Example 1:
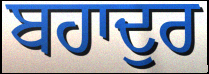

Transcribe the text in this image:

ਬਹਾਦੁਰ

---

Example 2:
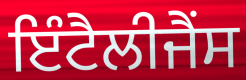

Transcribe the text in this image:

ਇੰਟੈਲੀਜੈਂਸ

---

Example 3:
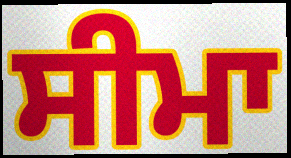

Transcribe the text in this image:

ਸੀਮਾ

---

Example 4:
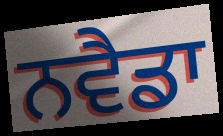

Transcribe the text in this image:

ਨਵੈਡਾ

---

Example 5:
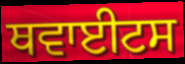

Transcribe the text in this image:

ਥਵਾਈਟਸ